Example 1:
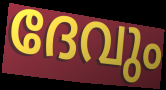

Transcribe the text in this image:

ദേവും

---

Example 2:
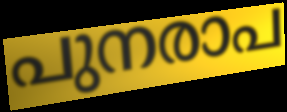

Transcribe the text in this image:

പുനരാപ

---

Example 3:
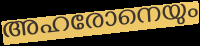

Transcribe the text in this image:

അഹരോനെയും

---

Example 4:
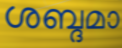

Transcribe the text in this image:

ശബ്ദമാ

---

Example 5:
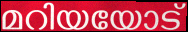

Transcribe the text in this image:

മറിയയോട്